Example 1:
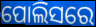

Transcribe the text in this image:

ପୋଲିସରେ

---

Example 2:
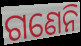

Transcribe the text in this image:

ଗଣେନି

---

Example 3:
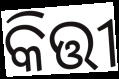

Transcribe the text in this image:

କିତ୍ତୀ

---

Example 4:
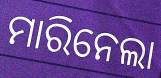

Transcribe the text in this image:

ମାରିନେଲା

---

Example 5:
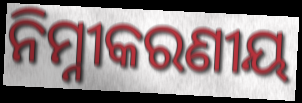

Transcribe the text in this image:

ନିମ୍ନୀକରଣୀୟ